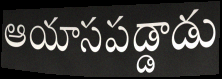
ఆయాసపడ్డాడు